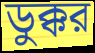
ডুক্কর